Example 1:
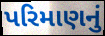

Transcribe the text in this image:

પરિમાણનું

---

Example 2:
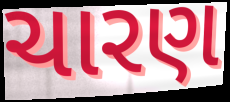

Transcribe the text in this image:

ચારણ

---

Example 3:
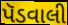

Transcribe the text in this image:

પૅડવાલી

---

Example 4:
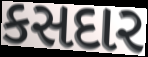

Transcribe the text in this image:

કસદાર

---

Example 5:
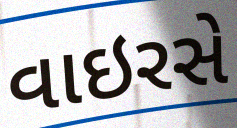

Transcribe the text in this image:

વાઇરસે